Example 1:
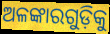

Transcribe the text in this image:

ଅଳଙ୍କାରଗୁଡ଼ିକୁ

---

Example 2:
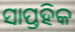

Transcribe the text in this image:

ସାପ୍ତହିକ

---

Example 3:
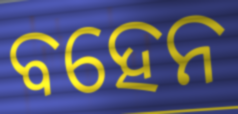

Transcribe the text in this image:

ବହେନ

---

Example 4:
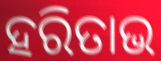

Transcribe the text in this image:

ହରିତାଭ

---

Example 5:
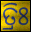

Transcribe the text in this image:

ତ୍ରିଃ